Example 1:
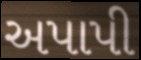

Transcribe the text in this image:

અપાપી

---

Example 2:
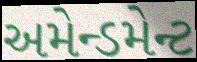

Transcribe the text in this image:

અમેન્ડમેન્ટ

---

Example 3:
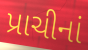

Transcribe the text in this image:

પ્રાચીનાં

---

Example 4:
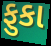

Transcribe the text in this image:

ફુકા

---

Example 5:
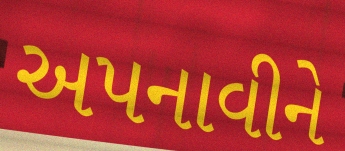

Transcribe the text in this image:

અપનાવીને